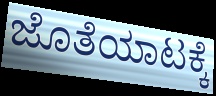
ಜೊತೆಯಾಟಕ್ಕೆ